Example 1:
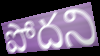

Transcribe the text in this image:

పోదని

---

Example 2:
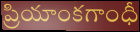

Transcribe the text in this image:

ప్రియాంకగాంధీ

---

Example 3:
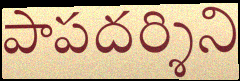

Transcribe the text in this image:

పాపదర్శిని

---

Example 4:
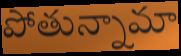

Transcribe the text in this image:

పోతున్నామా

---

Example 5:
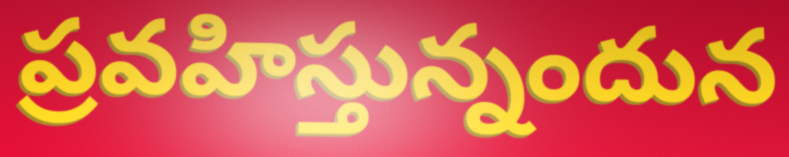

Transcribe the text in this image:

ప్రవహిస్తున్నందున